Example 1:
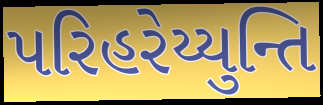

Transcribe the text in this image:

પરિહરેય્યુન્તિ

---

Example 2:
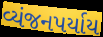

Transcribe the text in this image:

વ્યંજનપર્યાય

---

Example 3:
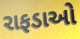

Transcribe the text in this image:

રાફડાઓ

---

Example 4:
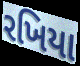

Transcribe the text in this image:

રખિયા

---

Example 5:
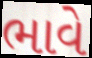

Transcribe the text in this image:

ભાવે